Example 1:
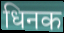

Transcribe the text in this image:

धिनक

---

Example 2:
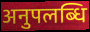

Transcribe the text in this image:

अनुपलब्धि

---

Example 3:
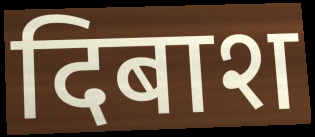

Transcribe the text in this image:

दिबाश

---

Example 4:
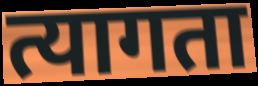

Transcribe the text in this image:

त्यागता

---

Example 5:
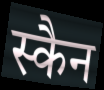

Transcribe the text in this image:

स्‍कैन